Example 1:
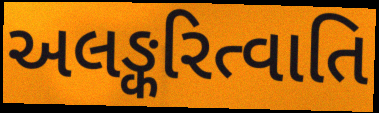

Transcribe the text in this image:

અલઙ્કરિત્વાતિ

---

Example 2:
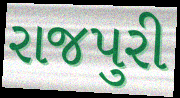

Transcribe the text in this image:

રાજપુરી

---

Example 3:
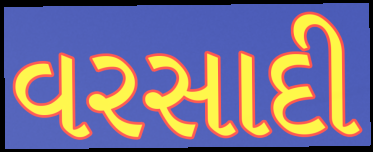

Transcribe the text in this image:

વરસાદી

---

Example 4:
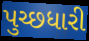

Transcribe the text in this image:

પુચ્છધારી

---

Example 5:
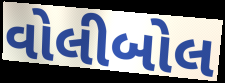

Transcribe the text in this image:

વોલીબોલ